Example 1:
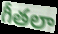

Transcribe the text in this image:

గీతలా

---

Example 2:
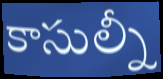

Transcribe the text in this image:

కాసుల్నీ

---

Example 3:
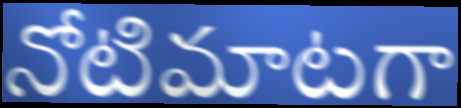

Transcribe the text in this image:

నోటిమాటగా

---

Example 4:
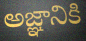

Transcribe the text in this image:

అజ్ఞానికి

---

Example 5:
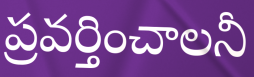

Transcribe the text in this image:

ప్రవర్తించాలనీ